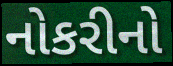
નોકરીનો